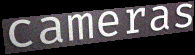
cameras